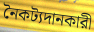
নৈকট্যদানকারী